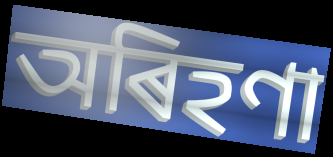
অৰিহণা